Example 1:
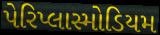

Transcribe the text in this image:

પેરિપ્લાસ્મોડિયમ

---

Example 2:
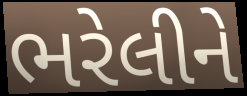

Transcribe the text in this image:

ભરેલીને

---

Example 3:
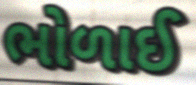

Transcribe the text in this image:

ભોળાઈ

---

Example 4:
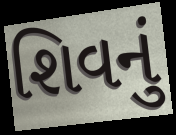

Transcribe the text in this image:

શિવનું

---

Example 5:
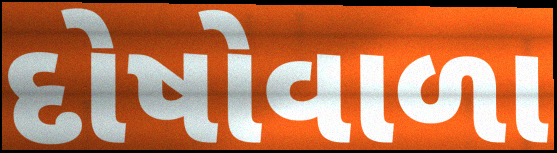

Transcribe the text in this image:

દોષોવાળા